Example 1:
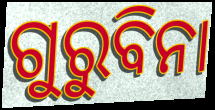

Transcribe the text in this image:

ଗୁରୁବିନା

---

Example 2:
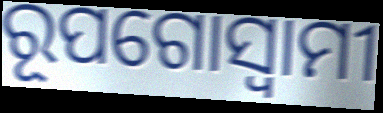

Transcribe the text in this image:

ରୂପଗୋସ୍ୱାମୀ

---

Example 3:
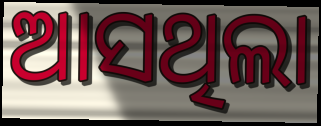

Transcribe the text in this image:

ଆସଥିଲା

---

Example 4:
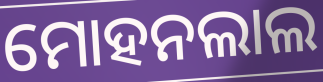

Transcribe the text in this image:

ମୋହନଲାଲ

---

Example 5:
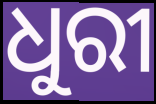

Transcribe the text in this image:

ଧୁରୀ